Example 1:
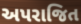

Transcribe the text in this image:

અપરાજિત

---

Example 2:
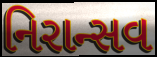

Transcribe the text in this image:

નિરાન્સવ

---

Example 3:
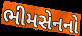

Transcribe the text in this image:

ભીમસેનનો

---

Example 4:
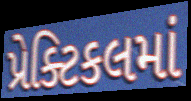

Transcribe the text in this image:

પ્રેક્ટિકલમાં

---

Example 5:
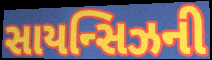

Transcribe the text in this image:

સાયન્સિઝની